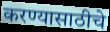
करण्यासाठीचे